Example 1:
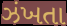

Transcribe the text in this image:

ઝંખતા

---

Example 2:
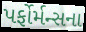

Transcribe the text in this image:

પર્ફોર્મન્સના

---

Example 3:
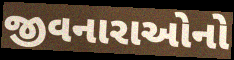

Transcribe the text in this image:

જીવનારાઓનો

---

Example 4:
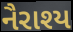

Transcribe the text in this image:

નૈરાશ્ય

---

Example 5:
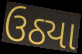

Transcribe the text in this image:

ઉઠ્યા